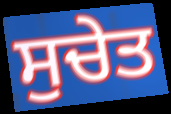
ਸੁਚੇਤ